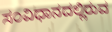
ಸಂವಿಧಾನದಲ್ಲಿರುವ